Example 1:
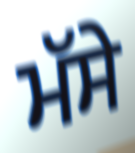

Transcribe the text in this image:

ਮੱਸੇ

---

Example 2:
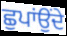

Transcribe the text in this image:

ਛੁਪਾਂਉਂਦੇ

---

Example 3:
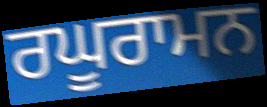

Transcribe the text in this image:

ਰਘੂਰਾਮਨ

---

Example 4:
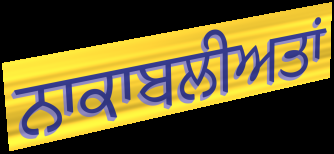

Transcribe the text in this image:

ਨਾਕਾਬਲੀਅਤਾਂ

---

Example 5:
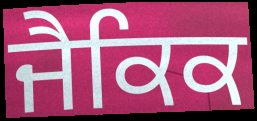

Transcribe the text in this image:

ਜੈਕਿਕ